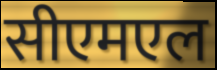
सीएमएल